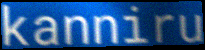
kanniru